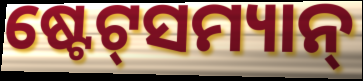
ଷ୍ଟେଟ୍‌ସମ୍ୟାନ୍